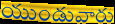
యుండువారు